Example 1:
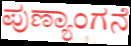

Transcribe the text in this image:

ಪುಣ್ಯಾಂಗನೆ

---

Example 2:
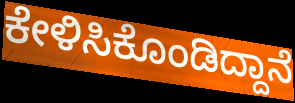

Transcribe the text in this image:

ಕೇಳಿಸಿಕೊಂಡಿದ್ದಾನೆ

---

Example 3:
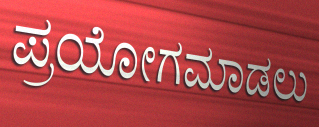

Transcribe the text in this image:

ಪ್ರಯೋಗಮಾಡಲು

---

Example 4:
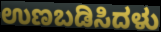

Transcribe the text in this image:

ಉಣಬಡಿಸಿದಳು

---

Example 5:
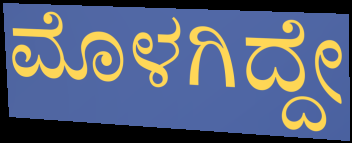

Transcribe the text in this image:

ಮೊಳಗಿದ್ದೇ